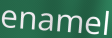
enamel